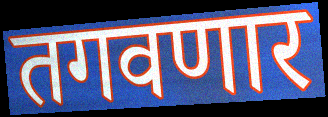
तगवणार